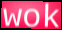
wok